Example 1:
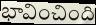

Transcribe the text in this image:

భావించింది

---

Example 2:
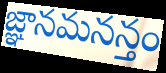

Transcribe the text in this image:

జ్ఞానమనన్తం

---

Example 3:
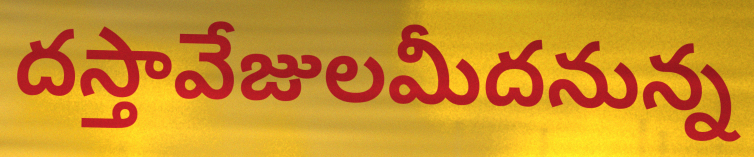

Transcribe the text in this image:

దస్తావేజులమీదనున్న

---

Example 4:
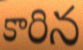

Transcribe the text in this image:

కారిన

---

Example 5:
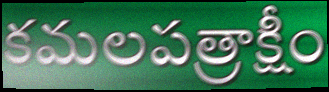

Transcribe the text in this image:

కమలపత్రాక్షీం